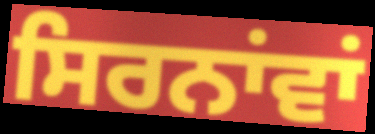
ਸਿਰਨਾਂਵਾਂ